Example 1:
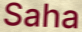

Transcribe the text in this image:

Saha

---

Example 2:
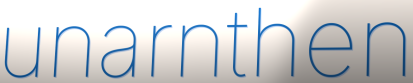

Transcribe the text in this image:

unarnthen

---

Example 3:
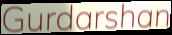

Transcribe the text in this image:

Gurdarshan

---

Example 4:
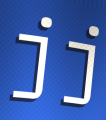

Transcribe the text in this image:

jj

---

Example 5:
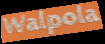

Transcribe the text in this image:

Walpola